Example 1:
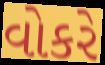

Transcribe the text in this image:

વોકરે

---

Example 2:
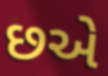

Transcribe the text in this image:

છએ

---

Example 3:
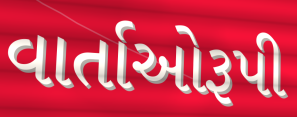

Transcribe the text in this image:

વાર્તાઓરૂપી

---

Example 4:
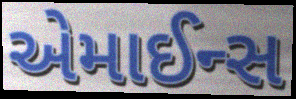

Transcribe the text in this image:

એમાઈન્સ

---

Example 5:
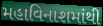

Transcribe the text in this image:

મહાવિનાશમાંથી